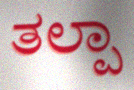
ತಲ್ಪಾ